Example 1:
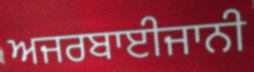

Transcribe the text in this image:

ਅਜਰਬਾਈਜਾਨੀ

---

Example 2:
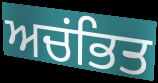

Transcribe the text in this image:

ਅਚਂਭਿਤ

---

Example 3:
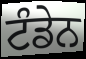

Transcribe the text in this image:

ਟੰਡੇਨ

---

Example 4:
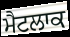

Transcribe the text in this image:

ਮੈਟਲਾਕ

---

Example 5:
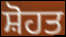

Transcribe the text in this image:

ਸ਼ੋਹਤ